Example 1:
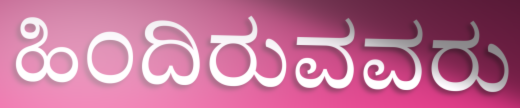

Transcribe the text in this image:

ಹಿಂದಿರುವವರು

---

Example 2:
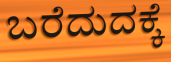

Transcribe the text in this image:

ಬರೆದುದಕ್ಕೆ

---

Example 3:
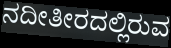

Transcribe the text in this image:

ನದೀತೀರದಲ್ಲಿರುವ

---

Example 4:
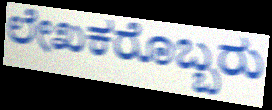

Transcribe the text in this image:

ಲೇಖಕರೊಬ್ಬರು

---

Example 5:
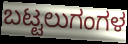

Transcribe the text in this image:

ಬಟ್ಟಲುಗಂಗಳ